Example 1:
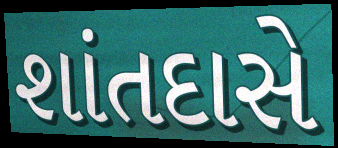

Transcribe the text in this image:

શાંતદાસે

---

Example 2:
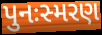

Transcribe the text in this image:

પુનઃસ્મરણ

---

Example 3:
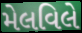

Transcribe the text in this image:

મેલવિલે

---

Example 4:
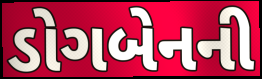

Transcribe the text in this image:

ડોગબેનની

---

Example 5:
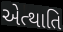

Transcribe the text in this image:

એત્થાતિ